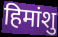
हिमांशु